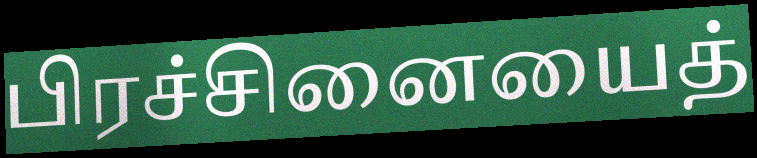
பிரச்சினையைத்